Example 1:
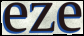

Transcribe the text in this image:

eze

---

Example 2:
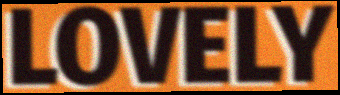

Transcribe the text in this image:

LOVELY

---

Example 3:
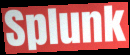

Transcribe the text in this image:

Splunk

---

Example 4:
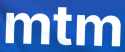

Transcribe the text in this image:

mtm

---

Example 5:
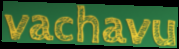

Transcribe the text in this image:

vachavu